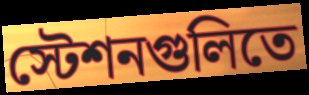
স্টেশনগুলিতে